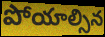
పోయాల్సిన